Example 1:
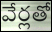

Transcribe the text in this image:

వేర్లతో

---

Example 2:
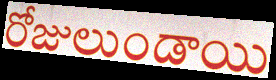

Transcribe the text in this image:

రోజులుండాయి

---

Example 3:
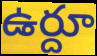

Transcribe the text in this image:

ఉర్దూ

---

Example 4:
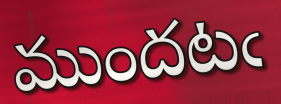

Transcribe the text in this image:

ముందటఁ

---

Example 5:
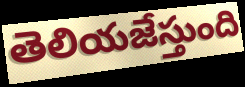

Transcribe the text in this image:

తెలియజేస్తుంది